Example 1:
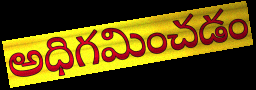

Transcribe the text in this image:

అధిగమించడం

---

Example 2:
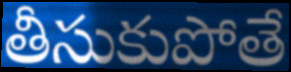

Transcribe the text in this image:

తీసుకుపోతే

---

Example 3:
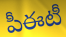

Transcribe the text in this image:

పీఈటీ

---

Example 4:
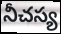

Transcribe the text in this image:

నీచస్య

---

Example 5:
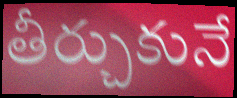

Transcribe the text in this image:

తీర్చుకునే